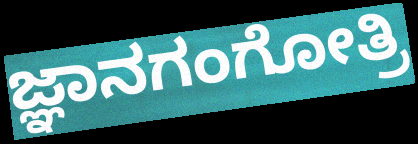
ಜ್ಞಾನಗಂಗೋತ್ರಿ